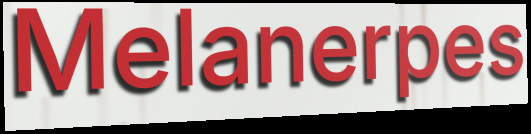
Melanerpes